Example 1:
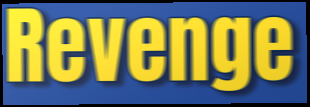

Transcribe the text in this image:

Revenge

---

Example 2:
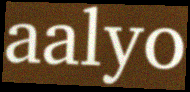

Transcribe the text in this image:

aalyo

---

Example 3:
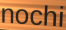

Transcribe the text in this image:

nochi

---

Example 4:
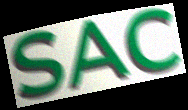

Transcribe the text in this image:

SAC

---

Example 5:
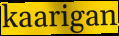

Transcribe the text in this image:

kaarigan